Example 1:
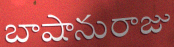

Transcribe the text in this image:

బాషానురాజు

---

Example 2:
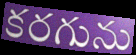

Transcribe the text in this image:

కరగును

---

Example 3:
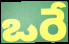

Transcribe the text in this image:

ఒరే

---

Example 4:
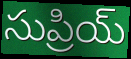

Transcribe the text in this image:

సుప్రియ్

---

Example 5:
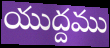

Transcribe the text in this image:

యుద్దము